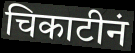
चिकाटीनं